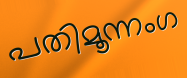
പതിമൂന്നംഗ